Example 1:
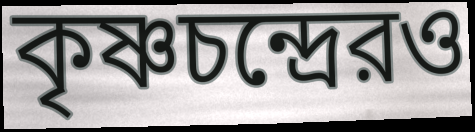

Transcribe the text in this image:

কৃষ্ণচন্দ্রেরও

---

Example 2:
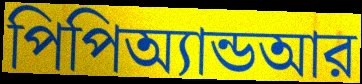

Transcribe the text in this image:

পিপিঅ্যান্ডআর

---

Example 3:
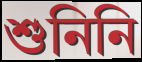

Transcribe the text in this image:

শুনিনি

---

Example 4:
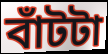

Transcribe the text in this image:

বাঁটটা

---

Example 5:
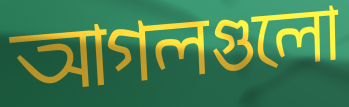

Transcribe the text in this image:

আগলগুলো